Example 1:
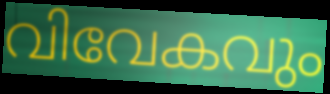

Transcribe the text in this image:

വിവേകവും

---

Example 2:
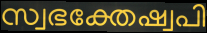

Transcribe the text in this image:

സ്വഭക്തേഷ്വപി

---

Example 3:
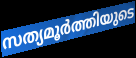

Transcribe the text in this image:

സത്യമൂർത്തിയുടെ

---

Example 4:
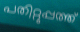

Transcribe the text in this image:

പതിറ്റുപ്പത്ത്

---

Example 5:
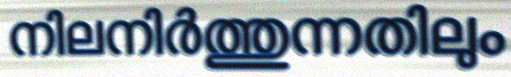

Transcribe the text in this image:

നിലനിർത്തുന്നതിലും